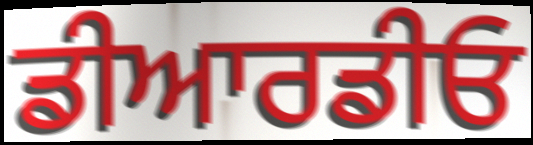
ਡੀਆਰਡੀਓ